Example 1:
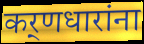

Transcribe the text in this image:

कर्णधारांना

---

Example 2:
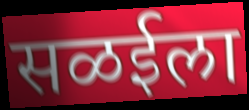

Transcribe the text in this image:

सळईला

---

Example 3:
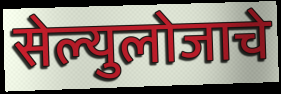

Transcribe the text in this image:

सेल्युलोजाचे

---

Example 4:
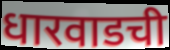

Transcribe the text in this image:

धारवाडची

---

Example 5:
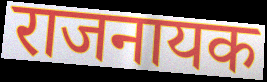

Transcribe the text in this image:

राजनायक